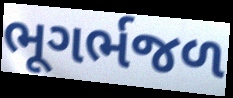
ભૂગર્ભજળ